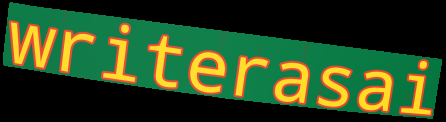
writerasai